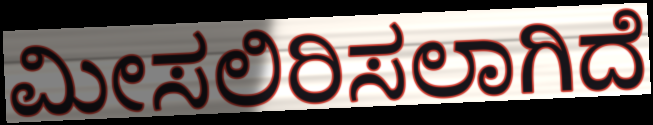
ಮೀಸಲಿರಿಸಲಾಗಿದೆ